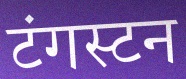
टंगस्टन